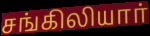
சங்கிலியார்